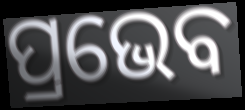
ପ୍ରଭେବ